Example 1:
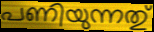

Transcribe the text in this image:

പണിയുന്നതു്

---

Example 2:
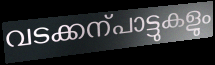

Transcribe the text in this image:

വടക്കന്പാട്ടുകളും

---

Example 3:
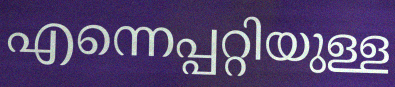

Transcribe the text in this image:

എന്നെപ്പറ്റിയുള്ള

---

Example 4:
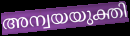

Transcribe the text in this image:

അന്വയയുക്തി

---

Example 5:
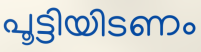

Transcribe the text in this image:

പൂട്ടിയിടണം